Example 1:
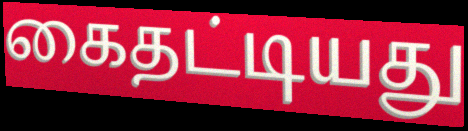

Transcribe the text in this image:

கைதட்டியது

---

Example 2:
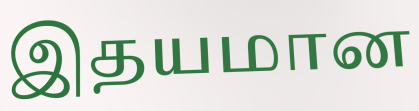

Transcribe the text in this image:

இதயமான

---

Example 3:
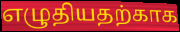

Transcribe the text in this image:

எழுதியதற்காக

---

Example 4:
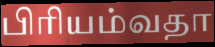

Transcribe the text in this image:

பிரியம்வதா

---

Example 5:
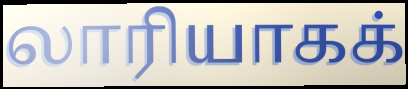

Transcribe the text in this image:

லாரியாகக்